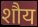
शौय